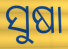
ସୁଷା